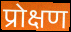
प्रोक्षण